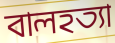
বালহত্যা